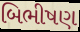
બિભીષણ